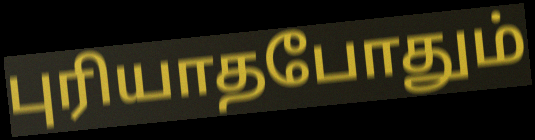
புரியாதபோதும்